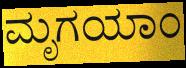
ಮೃಗಯಾಂ